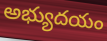
అభ్యుదయం